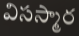
విసస్మార